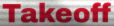
Takeoff